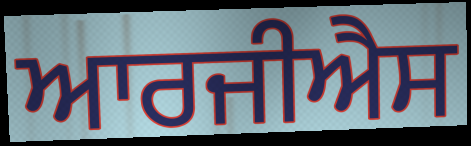
ਆਰਜੀਐਸ